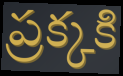
ప్రక్కకి